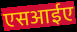
एसआईए